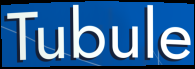
Tubule